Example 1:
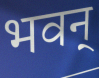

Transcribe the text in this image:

भवन्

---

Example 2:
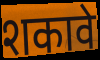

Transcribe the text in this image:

शकावे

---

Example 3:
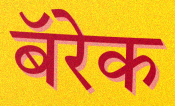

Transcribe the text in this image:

बॅरेक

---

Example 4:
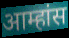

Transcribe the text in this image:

आम्हांस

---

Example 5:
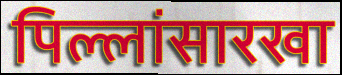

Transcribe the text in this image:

पिल्लांसारखा